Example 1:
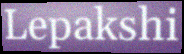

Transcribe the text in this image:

Lepakshi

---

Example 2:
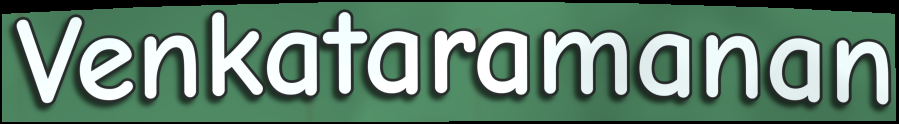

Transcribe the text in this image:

Venkataramanan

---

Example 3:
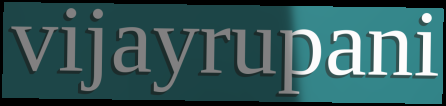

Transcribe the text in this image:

vijayrupani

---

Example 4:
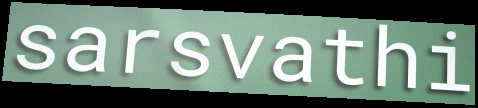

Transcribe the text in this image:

sarsvathi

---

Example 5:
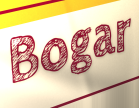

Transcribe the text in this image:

Bogar